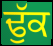
ਢੁੱਕ